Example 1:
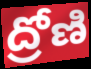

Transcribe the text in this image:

ద్రోణి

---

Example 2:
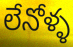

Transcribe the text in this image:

లేనోళ్ళ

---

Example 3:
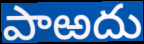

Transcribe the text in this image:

పాఱదు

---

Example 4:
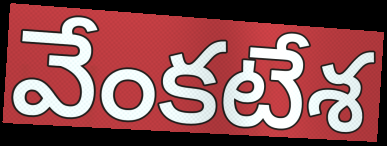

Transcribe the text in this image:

వేంకటేశ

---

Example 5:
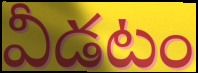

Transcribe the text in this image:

వీడటం